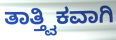
ತಾತ್ತ್ವಿಕವಾಗಿ